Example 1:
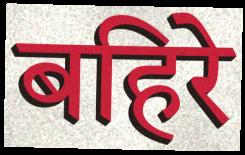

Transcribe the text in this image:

बहिरे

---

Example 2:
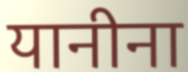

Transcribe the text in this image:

यानीना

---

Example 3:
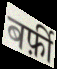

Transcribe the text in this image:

बर्फ़ी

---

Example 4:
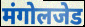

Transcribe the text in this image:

मंगोलजेड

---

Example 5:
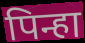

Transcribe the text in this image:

पिन्हा